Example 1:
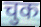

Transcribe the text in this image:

चुक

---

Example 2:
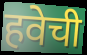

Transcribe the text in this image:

हवेची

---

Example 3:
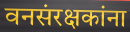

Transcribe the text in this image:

वनसंरक्षकांना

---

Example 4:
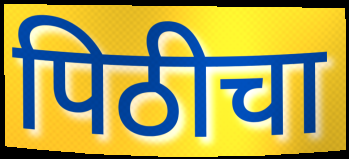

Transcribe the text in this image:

पिठीचा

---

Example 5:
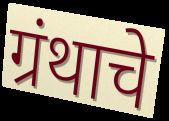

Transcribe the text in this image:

ग्रंथाचे